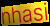
nhasi